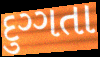
દુગ્ગતા